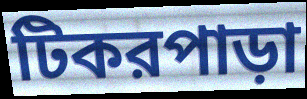
টিকরপাড়া